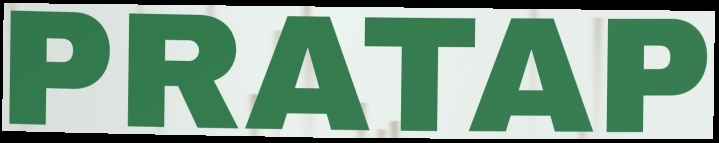
PRATAP